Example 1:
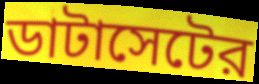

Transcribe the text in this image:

ডাটাসেটের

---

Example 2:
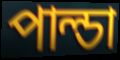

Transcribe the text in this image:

পাল্ডা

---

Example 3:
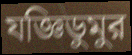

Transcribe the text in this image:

যজ্ঞিডুমুর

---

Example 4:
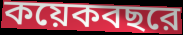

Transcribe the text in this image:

কয়েকবছরে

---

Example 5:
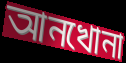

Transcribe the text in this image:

আনখোনা